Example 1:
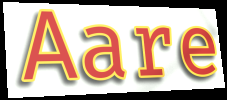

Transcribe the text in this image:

Aare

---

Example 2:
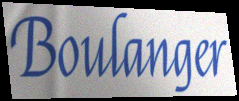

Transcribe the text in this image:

Boulanger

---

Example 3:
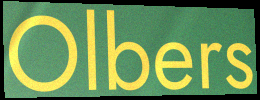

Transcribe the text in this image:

Olbers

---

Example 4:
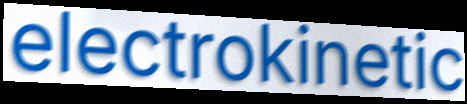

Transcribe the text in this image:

electrokinetic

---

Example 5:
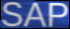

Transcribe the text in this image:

SAP